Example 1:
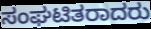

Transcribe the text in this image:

ಸಂಘಟಿತರಾದರು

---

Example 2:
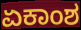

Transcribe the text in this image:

ಏಕಾಂಶ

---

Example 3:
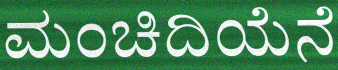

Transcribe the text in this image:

ಮಂಚಿದಿಯೆನೆ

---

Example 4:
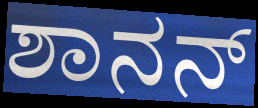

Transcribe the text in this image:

ಶಾನನ್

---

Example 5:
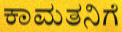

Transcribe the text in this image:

ಕಾಮತನಿಗೆ